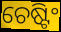
ଚେଷ୍ଟିଂ